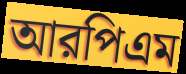
আরপিএম